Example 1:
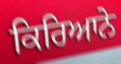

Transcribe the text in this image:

ਕਿਰਿਆਨੇ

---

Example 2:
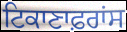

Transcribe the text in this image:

ਟਿਕਾਣਾਫ਼ਰਾਂਸ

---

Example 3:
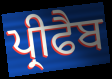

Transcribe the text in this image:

ਪ੍ਰੀਫੈਬ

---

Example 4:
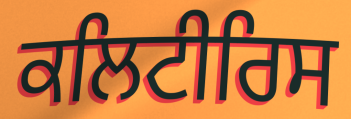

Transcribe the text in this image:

ਕਲਿਟੀਰਿਸ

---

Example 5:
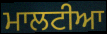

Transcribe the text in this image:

ਮਾਲਟੀਆ